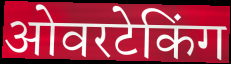
ओवरटेकिंग